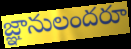
జ్ఞానులందరూ